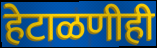
हेटाळणीही